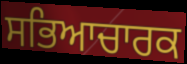
ਸਭਿਆਚਾਰਕ